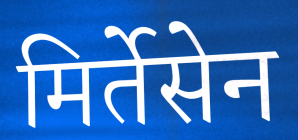
मिर्तेसेन